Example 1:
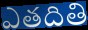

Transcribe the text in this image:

ఎతదితి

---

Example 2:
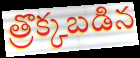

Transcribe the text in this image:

త్రొక్కబడిన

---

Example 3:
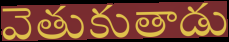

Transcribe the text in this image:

వెతుకుతాడు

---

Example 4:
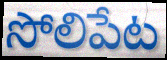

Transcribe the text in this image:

సోలిపేట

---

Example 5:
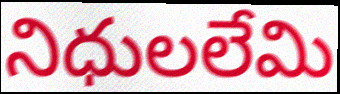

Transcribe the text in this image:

నిధులలేమి